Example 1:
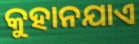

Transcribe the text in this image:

କୁହାନଯାଏ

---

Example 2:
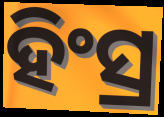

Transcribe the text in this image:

ହିଂସ୍ର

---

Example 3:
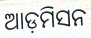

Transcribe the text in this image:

ଆଡ଼ମିସନ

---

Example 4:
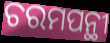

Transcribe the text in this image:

ଚରମପନ୍ଥୀ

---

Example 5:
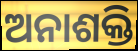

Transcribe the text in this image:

ଅନାଶକ୍ତି